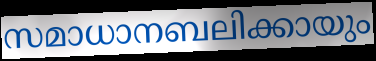
സമാധാനബലിക്കായും